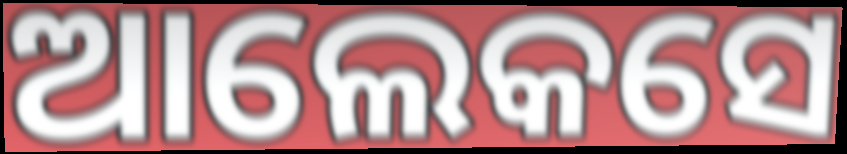
ଆଲେକସେ